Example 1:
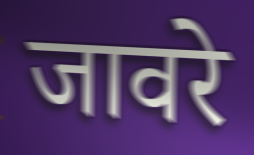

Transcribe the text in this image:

जावरे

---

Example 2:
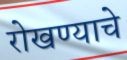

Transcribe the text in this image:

रोखण्याचे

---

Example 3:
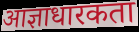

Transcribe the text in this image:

आज्ञाधारकता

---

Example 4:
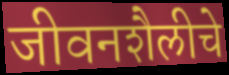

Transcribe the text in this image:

जीवनशैलीचे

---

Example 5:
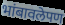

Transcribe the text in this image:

भांबावलेपण